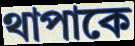
থাপাকে